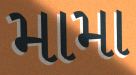
મામા